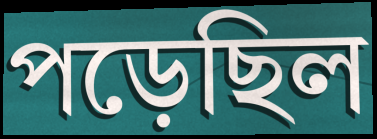
পড়েছিল